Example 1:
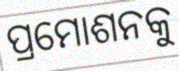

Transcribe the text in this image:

ପ୍ରମୋଶନକୁ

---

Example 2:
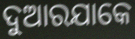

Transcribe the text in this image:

ଦୁଆରଯାକେ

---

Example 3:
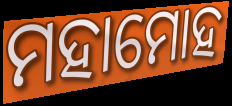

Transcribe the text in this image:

ମହାମୋହ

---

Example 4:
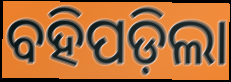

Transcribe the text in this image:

ବହିପଡ଼ିଲା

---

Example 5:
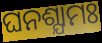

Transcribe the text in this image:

ଘନଶ୍ଯାମଃ